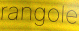
rangole